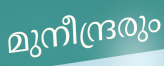
മുനീന്ദ്രരും